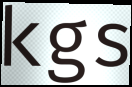
kgs